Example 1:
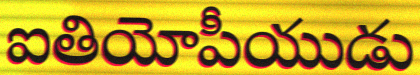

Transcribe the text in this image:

ఐతియోపీయుడు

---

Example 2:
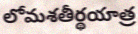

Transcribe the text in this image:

లోమశతీర్థయాత్ర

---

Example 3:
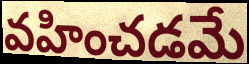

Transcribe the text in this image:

వహించడమే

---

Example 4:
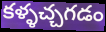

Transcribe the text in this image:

కళ్ళచ్చగడం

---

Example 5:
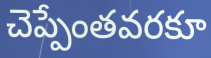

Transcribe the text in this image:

చెప్పేంతవరకూ